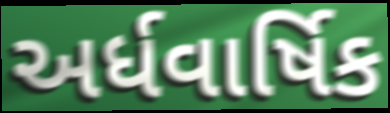
અર્ધવાર્ષિક